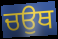
ਚਉਥ